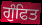
ਗੁੰਫਿਤ